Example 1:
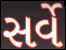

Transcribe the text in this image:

સર્વે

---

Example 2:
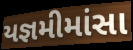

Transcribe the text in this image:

યજ્ઞમીમાંસા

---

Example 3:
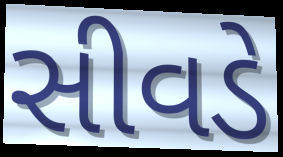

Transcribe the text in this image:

સીવડે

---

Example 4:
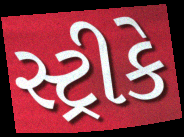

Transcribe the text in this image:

સ્ટ્રીકે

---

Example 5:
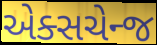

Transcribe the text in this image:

એક્સચેન્જ